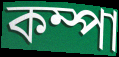
কম্পা